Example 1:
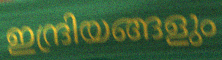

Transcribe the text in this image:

ഇന്ദ്രിയങ്ങളും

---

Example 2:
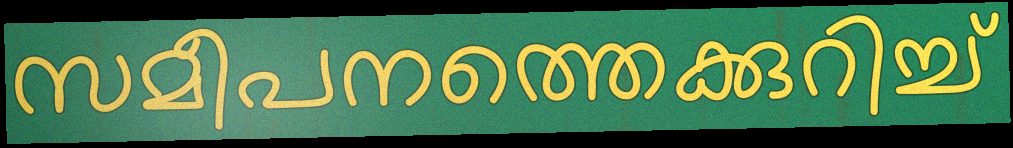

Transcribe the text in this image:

സമീപനത്തെക്കുറിച്ച്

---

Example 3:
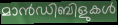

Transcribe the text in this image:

മാൻഡിബിളുകൾ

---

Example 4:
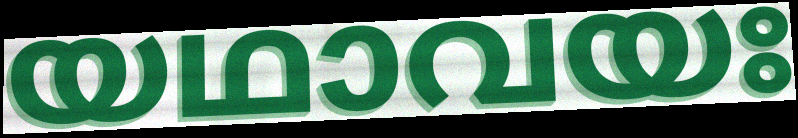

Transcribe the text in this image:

യഥാവയഃ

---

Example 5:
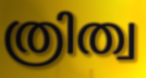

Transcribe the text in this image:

ത്രിത്വ